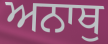
ਅਨਾਥੁ